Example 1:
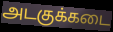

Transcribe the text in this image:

அடகுக்கடை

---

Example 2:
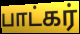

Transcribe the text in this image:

பாட்கர்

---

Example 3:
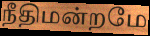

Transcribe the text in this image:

நீதிமன்றமே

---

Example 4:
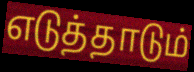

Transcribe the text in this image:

எடுத்தாடும்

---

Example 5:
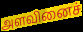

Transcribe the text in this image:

அளவினைச்